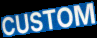
CUSTOM